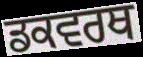
ਡਕਵਰਥ